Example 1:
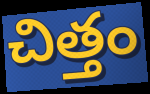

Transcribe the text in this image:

చిత్తం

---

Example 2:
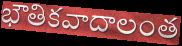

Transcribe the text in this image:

భౌతికవాదాలంత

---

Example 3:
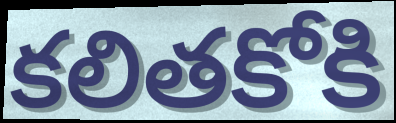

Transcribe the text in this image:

కలితకోకి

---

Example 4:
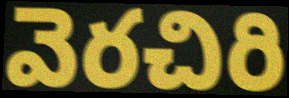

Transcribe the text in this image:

వెరచిరి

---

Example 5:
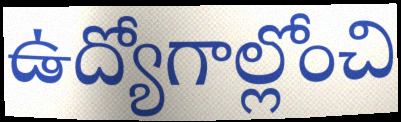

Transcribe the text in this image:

ఉద్యోగాల్లోంచి